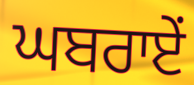
ਘਬਰਾਏਂ